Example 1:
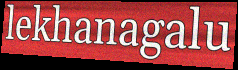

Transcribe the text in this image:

lekhanagalu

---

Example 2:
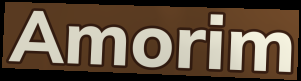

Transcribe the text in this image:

Amorim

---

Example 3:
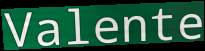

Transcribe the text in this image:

Valente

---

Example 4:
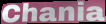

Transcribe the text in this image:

Chania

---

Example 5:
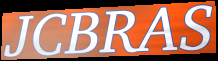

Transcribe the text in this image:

JCBRAS